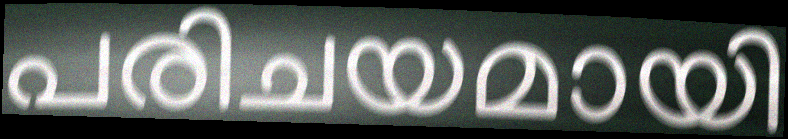
പരിചയമായി